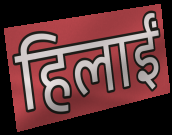
हिलाईं